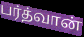
பர்த்வான்